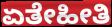
ಏತೇಹೀತಿ